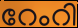
റേംറി